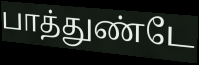
பாத்துண்டே